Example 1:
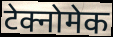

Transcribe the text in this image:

टेक्नोमेक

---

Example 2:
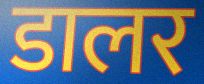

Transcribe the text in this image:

डालर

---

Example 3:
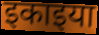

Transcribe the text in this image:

इकाइया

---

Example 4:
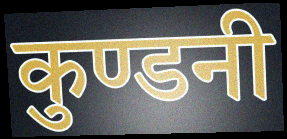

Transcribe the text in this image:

कुण्डनी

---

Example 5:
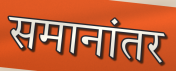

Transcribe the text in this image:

समानांतर